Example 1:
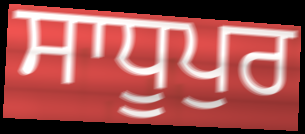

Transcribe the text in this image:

ਸਾਧੂਪੁਰ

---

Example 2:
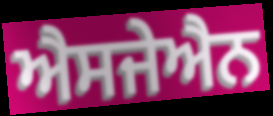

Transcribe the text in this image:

ਐਸਜੇਐਨ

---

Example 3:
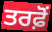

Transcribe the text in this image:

ਤਰਫ਼ੋਂ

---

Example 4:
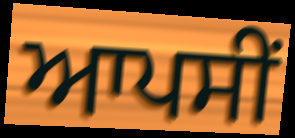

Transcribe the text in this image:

ਆਪਸੀਂ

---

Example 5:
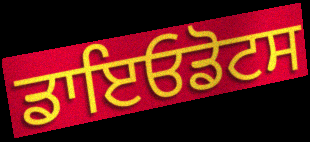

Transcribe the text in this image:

ਡਾਇਓਡੋਟਸ